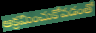
ఆక్రమించుకోవడంతో